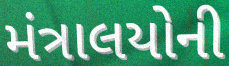
મંત્રાલયોની